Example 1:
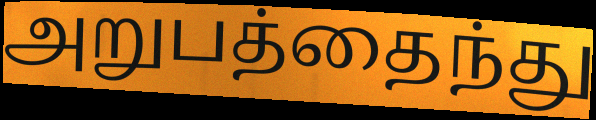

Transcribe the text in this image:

அறுபத்தைந்து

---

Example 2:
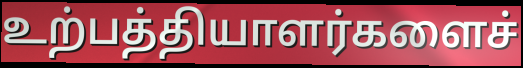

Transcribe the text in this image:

உற்பத்தியாளர்களைச்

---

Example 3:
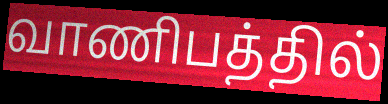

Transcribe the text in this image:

வாணிபத்தில்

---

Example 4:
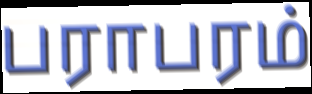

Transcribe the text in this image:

பராபரம்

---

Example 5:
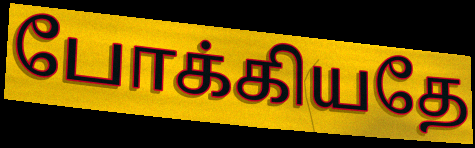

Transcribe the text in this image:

போக்கியதே